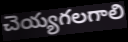
చెయ్యగలగాలి